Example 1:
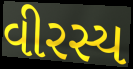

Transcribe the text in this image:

વીરસ્ય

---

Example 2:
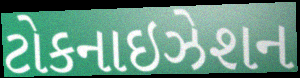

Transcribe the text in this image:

ટોકનાઇઝેશન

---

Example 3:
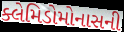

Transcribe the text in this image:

ક્લેમિડોમોનાસની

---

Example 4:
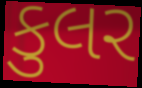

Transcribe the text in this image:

કુલર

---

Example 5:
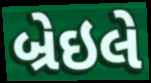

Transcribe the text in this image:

બ્રેઇલે